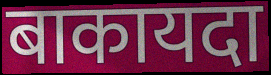
बाकायदा